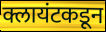
क्लायंटकडून